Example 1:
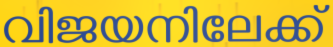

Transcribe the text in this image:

വിജയനിലേക്ക്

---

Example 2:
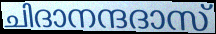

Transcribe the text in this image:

ചിദാനന്ദദാസ്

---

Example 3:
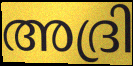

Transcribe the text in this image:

അദ്രി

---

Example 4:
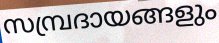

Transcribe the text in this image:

സമ്പ്രദായങ്ങളും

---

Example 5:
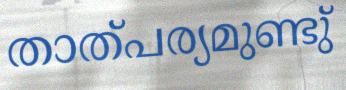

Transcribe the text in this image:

താത്പര്യമുണ്ടു്